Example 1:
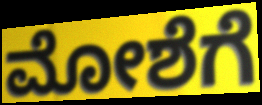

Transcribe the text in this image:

ಮೋಶೆಗೆ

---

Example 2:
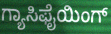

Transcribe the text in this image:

ಗ್ಯಾಸಿಫೈಯಿಂಗ್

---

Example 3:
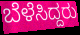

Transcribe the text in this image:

ಬೆಳೆಸಿದ್ದರು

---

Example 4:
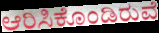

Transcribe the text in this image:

ಆರಿಸಿಕೊಂಡಿರುವೆ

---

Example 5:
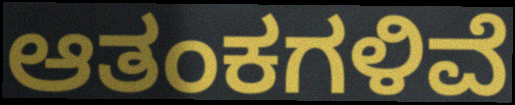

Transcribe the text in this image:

ಆತಂಕಗಳಿವೆ